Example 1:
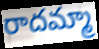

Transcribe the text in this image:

రాదమ్మా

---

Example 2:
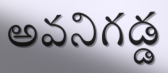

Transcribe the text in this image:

అవనిగడ్డ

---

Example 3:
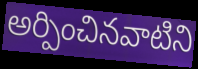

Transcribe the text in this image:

అర్పించినవాటిని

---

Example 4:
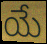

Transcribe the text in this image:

యే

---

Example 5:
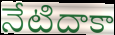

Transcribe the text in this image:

నేటిదాకా